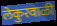
लेकुरवाळी